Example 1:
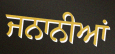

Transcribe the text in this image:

ਜਨਾਨੀਆਂ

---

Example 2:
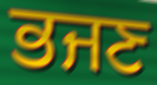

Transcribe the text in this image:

ਭਜਣ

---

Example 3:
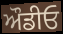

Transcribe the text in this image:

ਔਡੀਓ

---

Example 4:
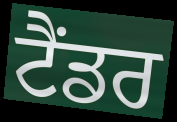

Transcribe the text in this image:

ਟੈਂਡਰ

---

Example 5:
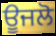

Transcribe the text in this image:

ਊਜਲੋ